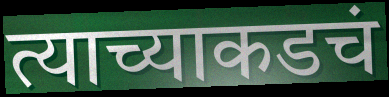
त्याच्याकडचं